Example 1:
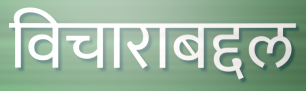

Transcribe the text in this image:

विचाराबद्दल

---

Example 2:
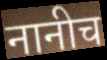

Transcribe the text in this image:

नानीच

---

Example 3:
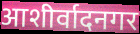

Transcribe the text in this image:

आशीर्वादनगर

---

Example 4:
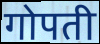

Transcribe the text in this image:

गोपती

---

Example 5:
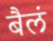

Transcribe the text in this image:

बैलं